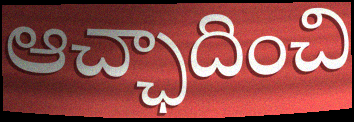
ఆచ్ఛాదించి